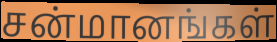
சன்மானங்கள்